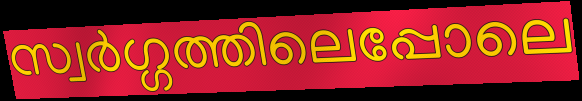
സ്വർഗ്ഗത്തിലെപ്പോലെ